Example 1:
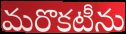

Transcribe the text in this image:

మరొకటీను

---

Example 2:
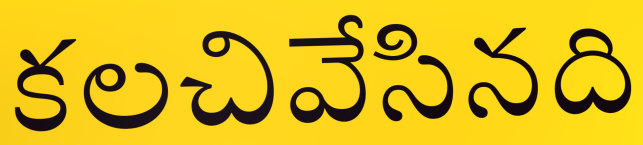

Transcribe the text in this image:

కలచివేసినది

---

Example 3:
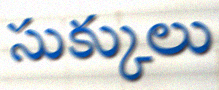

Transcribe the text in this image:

సుక్కులు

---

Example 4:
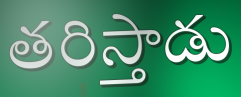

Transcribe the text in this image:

తరిస్తాడు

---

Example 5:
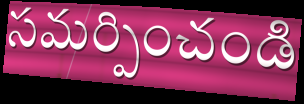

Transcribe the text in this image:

సమర్పించండి